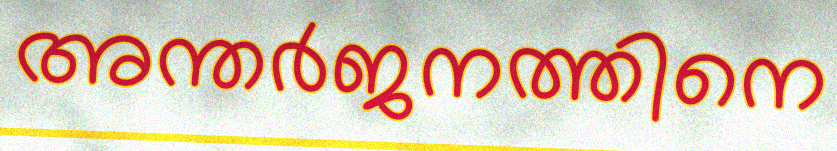
അന്തർജനത്തിനെ